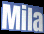
Mila